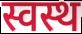
स्वस्थ